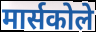
मार्सकोले